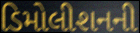
ડિમોલીશનની